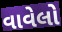
વાવેલો